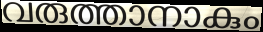
വരുത്താനാകും